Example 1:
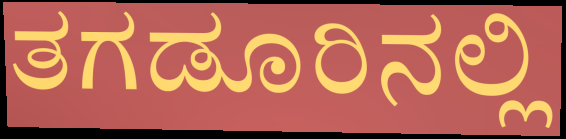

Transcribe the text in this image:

ತಗಡೂರಿನಲ್ಲಿ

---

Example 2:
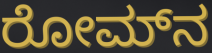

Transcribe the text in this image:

ರೋಮ್‌ನ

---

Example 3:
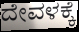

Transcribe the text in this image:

ದೇವಳಕ್ಕೆ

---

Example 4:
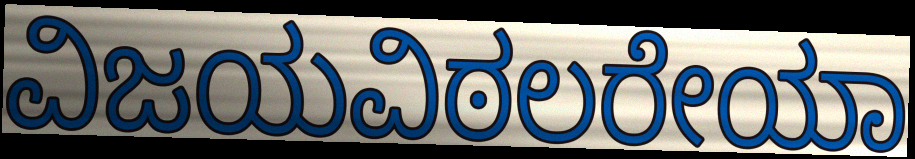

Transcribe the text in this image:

ವಿಜಯವಿಠಲರೇಯಾ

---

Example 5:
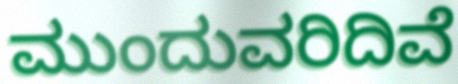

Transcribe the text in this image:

ಮುಂದುವರಿದಿವೆ